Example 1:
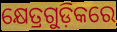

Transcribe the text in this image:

କ୍ଷେତ୍ରଗୁଡ଼ିକରେ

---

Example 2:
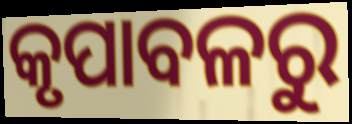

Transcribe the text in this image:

କୃପାବଳରୁ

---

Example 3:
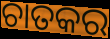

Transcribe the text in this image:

ଚାତକର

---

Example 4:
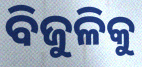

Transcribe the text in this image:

ବିଜୁଳିକୁ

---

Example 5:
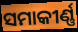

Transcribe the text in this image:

ସମାକୀର୍ଣ୍ଣ